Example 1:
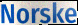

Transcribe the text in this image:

Norske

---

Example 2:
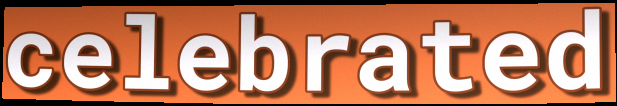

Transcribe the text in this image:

celebrated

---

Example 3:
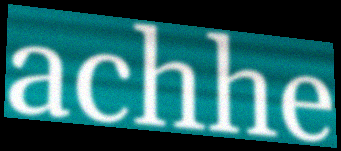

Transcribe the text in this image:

achhe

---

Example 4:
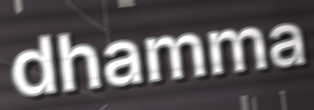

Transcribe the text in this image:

dhamma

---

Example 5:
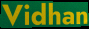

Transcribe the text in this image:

Vidhan